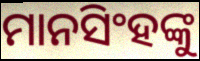
ମାନସିଂହଙ୍କୁ